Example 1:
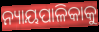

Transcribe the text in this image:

ନ୍ୟାୟପାଳିକାକୁ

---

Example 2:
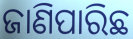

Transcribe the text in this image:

ଜାଣିପାରିଛ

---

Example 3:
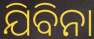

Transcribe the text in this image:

ଯିବିନା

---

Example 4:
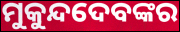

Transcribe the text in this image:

ମୁକୁନ୍ଦଦେବଙ୍କର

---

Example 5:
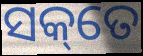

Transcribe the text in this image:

ସକ୍‌ତେ